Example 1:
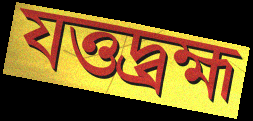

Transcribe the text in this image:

যত্তদ্ব্রহ্ম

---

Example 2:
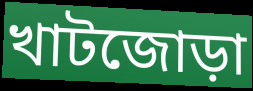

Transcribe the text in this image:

খাটজোড়া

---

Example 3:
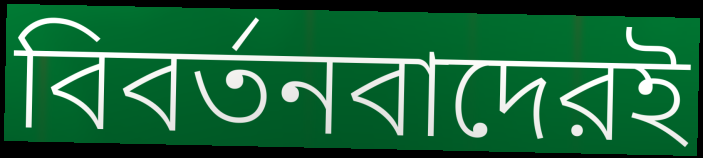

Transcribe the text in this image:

বিবর্তনবাদেরই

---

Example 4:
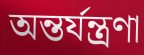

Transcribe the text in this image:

অন্তর্যন্ত্রণা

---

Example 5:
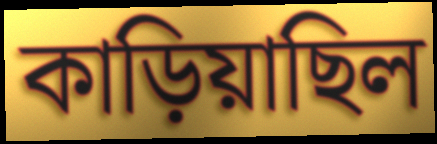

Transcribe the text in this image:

কাড়িয়াছিল